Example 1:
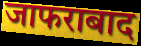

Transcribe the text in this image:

जाफराबाद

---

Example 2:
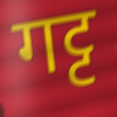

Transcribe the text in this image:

गट्ट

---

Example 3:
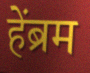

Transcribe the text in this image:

हेंब्रम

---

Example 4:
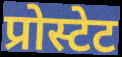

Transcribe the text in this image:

प्रोस्टेट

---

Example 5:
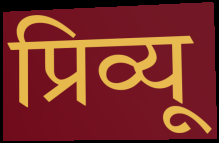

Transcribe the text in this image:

प्रिव्यू